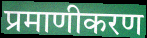
प्रमाणीकरण